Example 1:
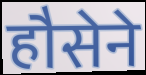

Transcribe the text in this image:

हौसेने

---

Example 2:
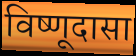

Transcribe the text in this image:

विष्णूदासा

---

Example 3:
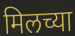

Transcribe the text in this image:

मिलच्या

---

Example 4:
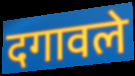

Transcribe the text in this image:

दगावले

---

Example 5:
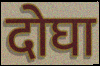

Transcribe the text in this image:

दोघा